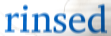
rinsed